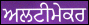
ਅਲਟੀਮੇਕਰ